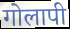
गोलापी